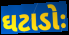
ઘટાડોઃ